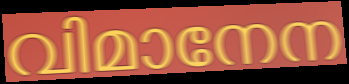
വിമാനേന